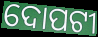
ଦୋପଟୀ